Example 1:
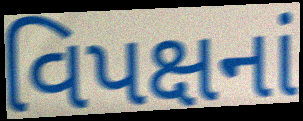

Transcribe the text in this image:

વિપક્ષનાં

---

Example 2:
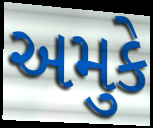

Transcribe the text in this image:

અમુકે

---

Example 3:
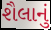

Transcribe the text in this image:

શૈલાનું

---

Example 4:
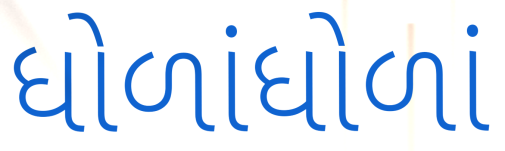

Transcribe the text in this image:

ધોળાંધોળાં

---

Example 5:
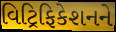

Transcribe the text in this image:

વિટ્રિફિકેશનને